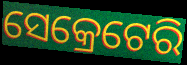
ସେକ୍ରେଟେରି